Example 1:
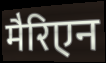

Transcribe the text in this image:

मैरिएन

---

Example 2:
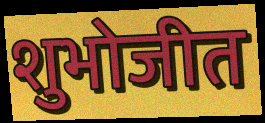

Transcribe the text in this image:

शुभोजीत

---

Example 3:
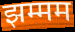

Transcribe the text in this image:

झम्मम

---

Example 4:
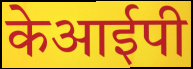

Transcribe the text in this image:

केआईपी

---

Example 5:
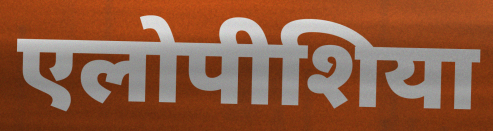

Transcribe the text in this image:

एलोपीशिया